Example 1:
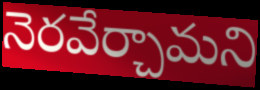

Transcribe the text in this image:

నెరవేర్చామని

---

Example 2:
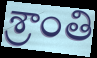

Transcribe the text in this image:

శ్రాంతి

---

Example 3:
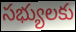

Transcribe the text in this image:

సభ్యులకు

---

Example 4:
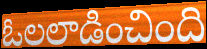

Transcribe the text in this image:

ఓలలాడించింది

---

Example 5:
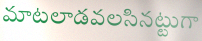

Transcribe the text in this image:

మాటలాడవలసినట్టుగా